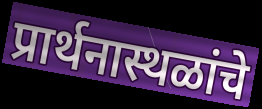
प्रार्थनास्थळांचे